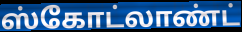
ஸ்கோட்லாண்ட்